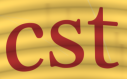
cst